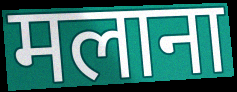
मलाना